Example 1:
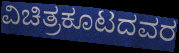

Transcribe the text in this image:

ವಿಚಿತ್ರಕೂಟದವರ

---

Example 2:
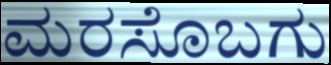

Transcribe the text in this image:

ಮರಸೊಬಗು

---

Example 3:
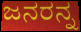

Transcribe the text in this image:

ಜನರನ್ನ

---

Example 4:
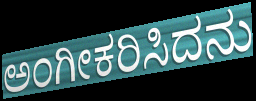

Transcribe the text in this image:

ಅಂಗೀಕರಿಸಿದನು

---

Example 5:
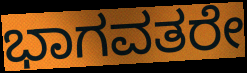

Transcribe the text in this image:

ಭಾಗವತರೇ